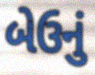
બેઉનું